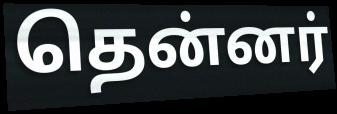
தென்னர்